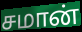
சமான்